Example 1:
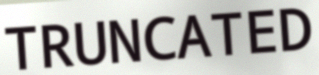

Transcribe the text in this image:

TRUNCATED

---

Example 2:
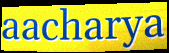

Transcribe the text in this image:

aacharya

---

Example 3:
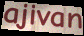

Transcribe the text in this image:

ajivan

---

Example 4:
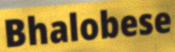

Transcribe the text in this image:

Bhalobese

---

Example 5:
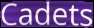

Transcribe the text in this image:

Cadets